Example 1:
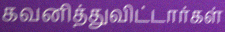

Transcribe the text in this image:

கவனித்துவிட்டார்கள்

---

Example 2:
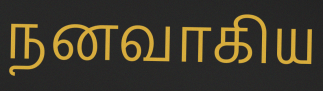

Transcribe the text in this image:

நனவாகிய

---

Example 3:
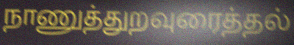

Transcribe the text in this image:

நாணுத்துறவுரைத்தல்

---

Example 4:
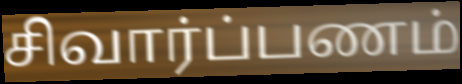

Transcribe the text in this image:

சிவார்ப்பணம்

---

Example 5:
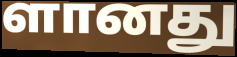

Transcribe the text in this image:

ளானது